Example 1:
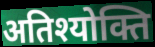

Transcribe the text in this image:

अतिश्योक्ति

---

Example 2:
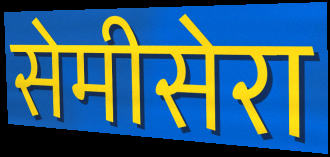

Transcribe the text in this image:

सेमीसेरा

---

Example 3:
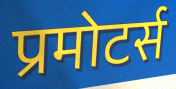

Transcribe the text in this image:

प्रमोटर्स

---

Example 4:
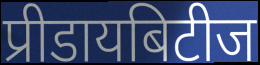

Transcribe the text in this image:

प्रीडायबिटीज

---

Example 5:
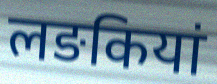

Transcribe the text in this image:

लङकियां